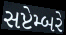
સપ્ટેમ્બરે